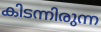
കിടന്നിരുന്ന